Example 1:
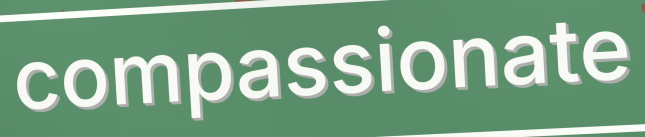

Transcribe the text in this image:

compassionate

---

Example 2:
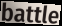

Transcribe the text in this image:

battle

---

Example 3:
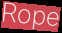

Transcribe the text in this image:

Rope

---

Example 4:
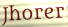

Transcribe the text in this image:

Jhorer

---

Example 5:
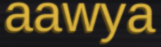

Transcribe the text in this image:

aawya